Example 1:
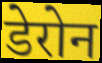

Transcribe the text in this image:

डेरोन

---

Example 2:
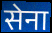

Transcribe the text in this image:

सेना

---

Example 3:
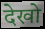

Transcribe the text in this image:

देखो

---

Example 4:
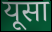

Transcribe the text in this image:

यूसा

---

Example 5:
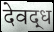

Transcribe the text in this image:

देवद्ध